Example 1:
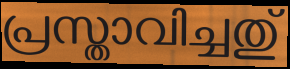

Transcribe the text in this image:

പ്രസ്താവിച്ചതു്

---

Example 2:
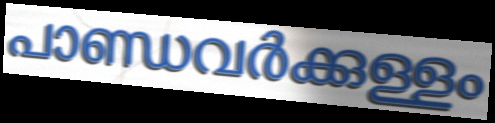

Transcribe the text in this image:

പാണ്ഡവർക്കുള്ളം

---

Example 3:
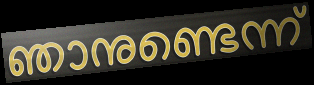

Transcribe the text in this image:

ഞാനുണ്ടെന്ന്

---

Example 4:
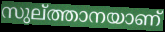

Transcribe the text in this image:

സുല്ത്താനയാണ്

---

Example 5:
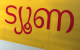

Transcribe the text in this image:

ട്യൂണ